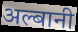
अल्बानी